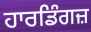
ਹਾਰਡਿੰਗਜ਼